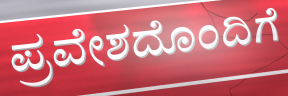
ಪ್ರವೇಶದೊಂದಿಗೆ